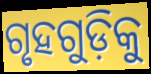
ଗୃହଗୁଡ଼ିକୁ